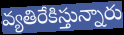
వ్యతిరేకిస్తున్నారు